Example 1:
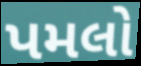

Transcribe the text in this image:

પમલો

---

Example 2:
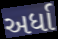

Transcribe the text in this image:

અર્ધા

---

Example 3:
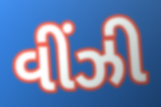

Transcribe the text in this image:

વીંઝી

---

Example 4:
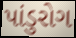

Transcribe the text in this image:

પાંડુરોગ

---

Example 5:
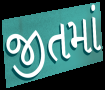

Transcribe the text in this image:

જીતમાં